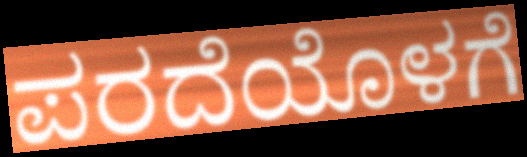
ಪರದೆಯೊಳಗೆ